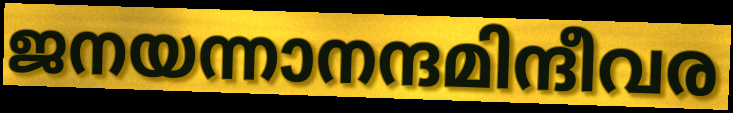
ജനയന്നാനന്ദമിന്ദീവര